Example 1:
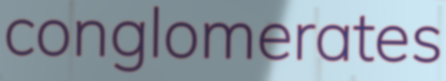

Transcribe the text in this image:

conglomerates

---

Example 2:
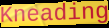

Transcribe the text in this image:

Kneading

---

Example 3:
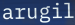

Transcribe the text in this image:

arugil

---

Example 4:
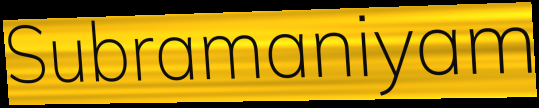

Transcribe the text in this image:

Subramaniyam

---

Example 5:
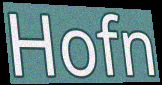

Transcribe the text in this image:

Hofn